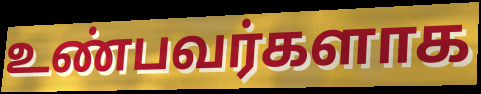
உண்பவர்களாக